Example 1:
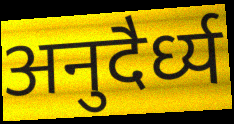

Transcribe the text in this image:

अनुदैर्ध्य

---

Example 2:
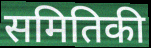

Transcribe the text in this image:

समितिकी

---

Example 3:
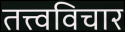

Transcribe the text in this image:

तत्त्वविचार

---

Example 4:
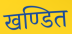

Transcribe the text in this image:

खण्डित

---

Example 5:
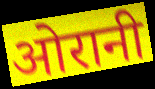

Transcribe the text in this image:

ओरानी